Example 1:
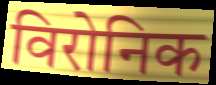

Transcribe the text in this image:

विरोनिक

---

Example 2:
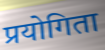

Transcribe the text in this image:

प्रयोगिता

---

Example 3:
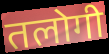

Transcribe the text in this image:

तलोगी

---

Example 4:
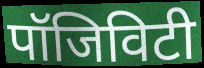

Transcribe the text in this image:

पॉजिविटी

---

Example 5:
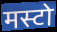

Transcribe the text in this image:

मस्टो